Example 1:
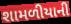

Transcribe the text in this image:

શામળીયાની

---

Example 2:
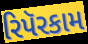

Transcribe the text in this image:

રિપૅરકામ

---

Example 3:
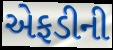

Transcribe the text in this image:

એફડીની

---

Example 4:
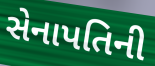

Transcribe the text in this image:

સેનાપતિની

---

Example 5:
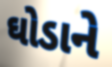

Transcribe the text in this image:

ઘોડાને